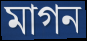
মাগন